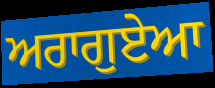
ਅਰਾਗੁਏਆ